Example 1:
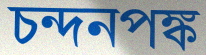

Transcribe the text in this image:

চন্দনপঙ্ক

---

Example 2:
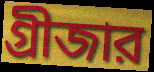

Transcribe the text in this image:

গ্রীজার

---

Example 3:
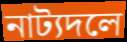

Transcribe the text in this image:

নাট্যদলে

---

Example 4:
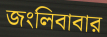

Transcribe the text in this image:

জংলিবাবার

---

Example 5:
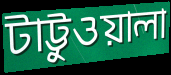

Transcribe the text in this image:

টাট্টুওয়ালা